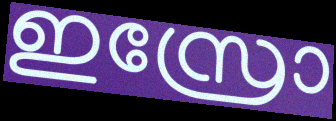
ഇസ്രോ